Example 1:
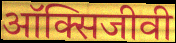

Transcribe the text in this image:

ऑक्सिजीवी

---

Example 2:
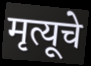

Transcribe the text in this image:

मृत्यूचे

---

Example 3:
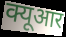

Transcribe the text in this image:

क्यूआर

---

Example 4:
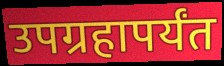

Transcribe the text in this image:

उपग्रहापर्यंत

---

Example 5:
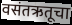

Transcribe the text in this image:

वसंतऋतूचा